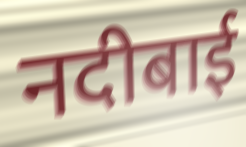
नदीबाई